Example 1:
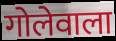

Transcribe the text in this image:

गोलेवाला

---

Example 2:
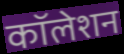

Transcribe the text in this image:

कॉलेशन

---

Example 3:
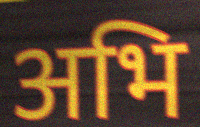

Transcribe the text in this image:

अभि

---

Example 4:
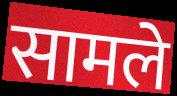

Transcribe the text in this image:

सामले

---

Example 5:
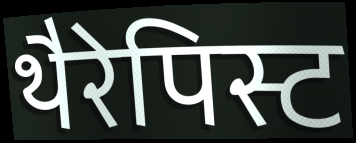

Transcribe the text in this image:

थैरेपिस्ट